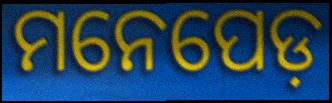
ମନେପେଡ଼